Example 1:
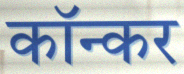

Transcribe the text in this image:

कॉन्कर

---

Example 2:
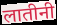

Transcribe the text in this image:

लातीनी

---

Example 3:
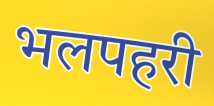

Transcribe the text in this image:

भलपहरी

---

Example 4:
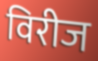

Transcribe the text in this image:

विरीज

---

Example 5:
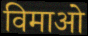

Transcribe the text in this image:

विमाओ